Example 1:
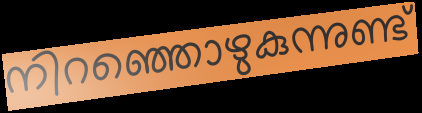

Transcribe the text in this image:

നിറഞ്ഞൊഴുകുന്നുണ്ട്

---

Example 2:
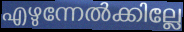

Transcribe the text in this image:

എഴുന്നേൽക്കില്ലേ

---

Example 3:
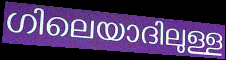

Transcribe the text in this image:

ഗിലെയാദിലുള്ള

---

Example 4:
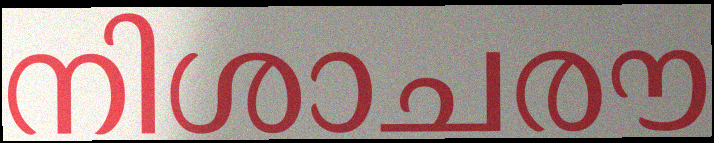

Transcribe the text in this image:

നിശാചരൗ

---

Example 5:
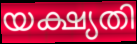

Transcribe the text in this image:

യക്ഷ്യതി